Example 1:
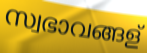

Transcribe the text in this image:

സ്വഭാവങ്ങള്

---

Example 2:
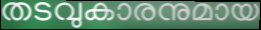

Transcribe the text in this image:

തടവുകാരനുമായ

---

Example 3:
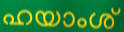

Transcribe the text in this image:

ഹയാംശ്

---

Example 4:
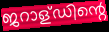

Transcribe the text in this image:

ജറാള്ഡിന്റെ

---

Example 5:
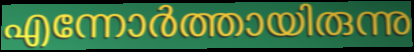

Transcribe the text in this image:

എന്നോർത്തായിരുന്നു